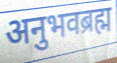
अनुभवब्रह्म